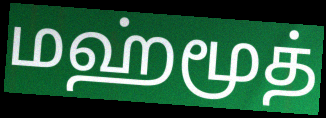
மஹ்மூத்